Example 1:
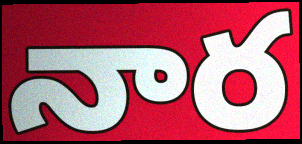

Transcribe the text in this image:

నార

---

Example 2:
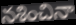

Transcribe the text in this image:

నశించినా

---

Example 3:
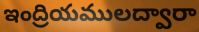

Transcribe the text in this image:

ఇంద్రియములద్వారా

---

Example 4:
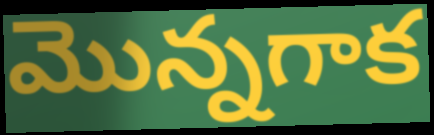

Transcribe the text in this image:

మొన్నగాక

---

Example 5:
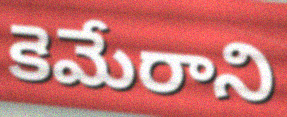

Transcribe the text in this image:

కెమేరాని